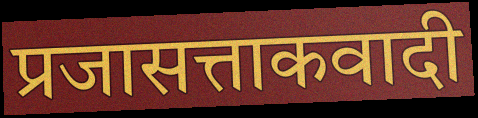
प्रजासत्ताकवादी